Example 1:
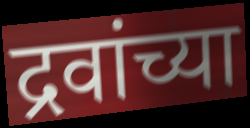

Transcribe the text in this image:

द्रवांच्या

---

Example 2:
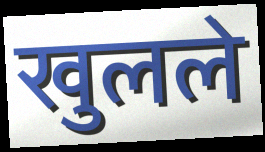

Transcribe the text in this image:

खुलले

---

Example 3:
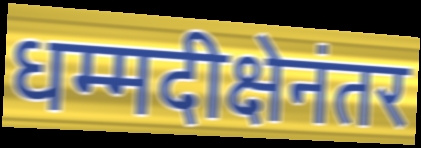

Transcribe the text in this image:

धम्मदीक्षेनंतर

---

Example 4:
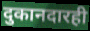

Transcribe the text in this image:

दुकानदारही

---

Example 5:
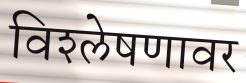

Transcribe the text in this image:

विश्लेषणावर